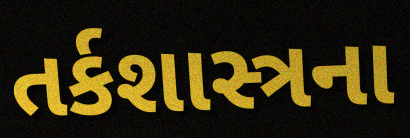
તર્કશાસ્ત્રના